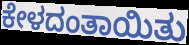
ಕೇಳದಂತಾಯಿತು